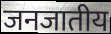
जनजातीय